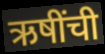
ऋषींची